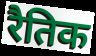
रैतिक